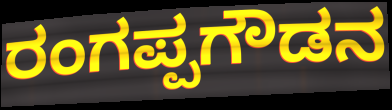
ರಂಗಪ್ಪಗೌಡನ